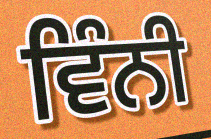
ਵਿੰਨੀ